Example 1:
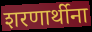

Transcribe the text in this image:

शरणार्थीना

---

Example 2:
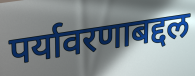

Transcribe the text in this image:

पर्यावरणाबद्दल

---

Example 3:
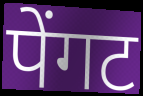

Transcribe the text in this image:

पेंगट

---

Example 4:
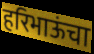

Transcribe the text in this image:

हरिभाऊंचा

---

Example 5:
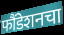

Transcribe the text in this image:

फौंडेशनचा